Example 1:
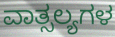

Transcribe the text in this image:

ವಾತ್ಸಲ್ಯಗಳ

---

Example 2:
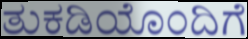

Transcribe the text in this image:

ತುಕಡಿಯೊಂದಿಗೆ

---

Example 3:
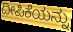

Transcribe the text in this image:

ದೀಪಿಕೆಯನ್ನು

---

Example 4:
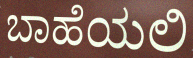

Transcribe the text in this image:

ಬಾಹೆಯಲಿ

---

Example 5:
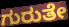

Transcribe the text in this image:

ಗುರುತೇ